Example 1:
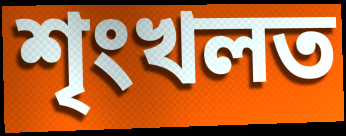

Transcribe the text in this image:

শৃংখলত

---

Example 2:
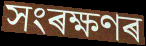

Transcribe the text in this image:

সংৰক্ষণৰ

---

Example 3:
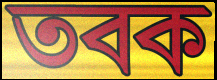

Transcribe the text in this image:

তবক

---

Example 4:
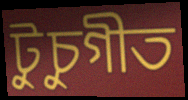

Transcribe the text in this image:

টুচুগীত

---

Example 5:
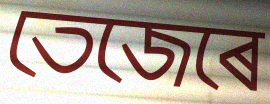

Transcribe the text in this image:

তেজেৰে